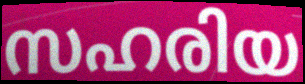
സഹരിയ